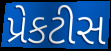
પ્રેકટીસ